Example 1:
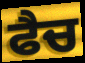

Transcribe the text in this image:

ਫੈਚ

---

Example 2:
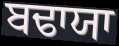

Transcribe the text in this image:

ਬਢਾਯਾ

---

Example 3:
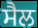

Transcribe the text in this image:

ਸੈਲ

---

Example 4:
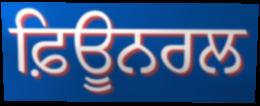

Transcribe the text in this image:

ਫ਼ਿਊਨਰਲ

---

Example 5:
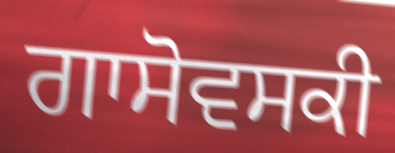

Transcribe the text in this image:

ਗਾਸੋਵਸਕੀ